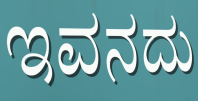
ಇವನದು